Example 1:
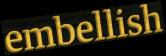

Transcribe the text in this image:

embellish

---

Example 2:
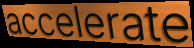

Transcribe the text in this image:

accelerate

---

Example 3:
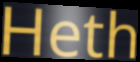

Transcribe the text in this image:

Heth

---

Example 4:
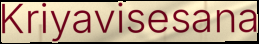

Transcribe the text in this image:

Kriyavisesana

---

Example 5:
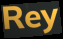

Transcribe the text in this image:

Rey